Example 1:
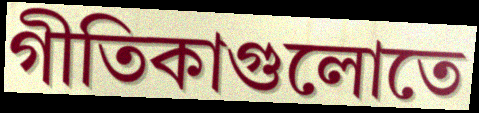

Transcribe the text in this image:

গীতিকাগুলোতে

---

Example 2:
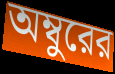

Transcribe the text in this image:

অম্বুরের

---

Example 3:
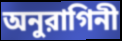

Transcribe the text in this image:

অনুরাগিনী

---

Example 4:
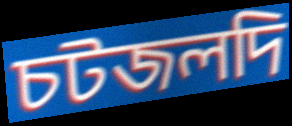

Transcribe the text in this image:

চটজলদি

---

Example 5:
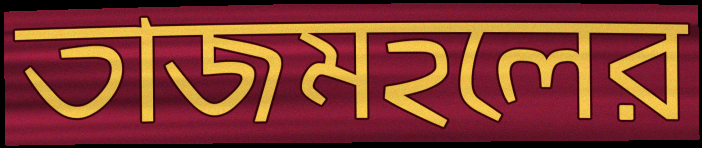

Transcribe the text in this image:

তাজমহলের